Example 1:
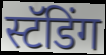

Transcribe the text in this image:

स्टॅडिंग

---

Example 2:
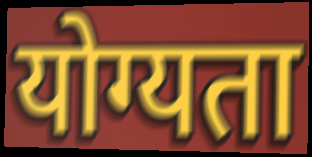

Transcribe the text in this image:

योग्यता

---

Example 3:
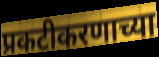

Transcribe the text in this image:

प्रकटीकरणाच्या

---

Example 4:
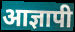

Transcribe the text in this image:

आज्ञापी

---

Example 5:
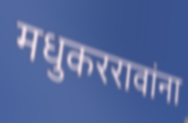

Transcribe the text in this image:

मधुकररावांना